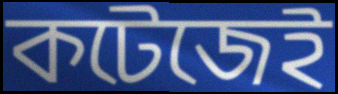
কটেজেই